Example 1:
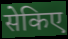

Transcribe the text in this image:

सेकिए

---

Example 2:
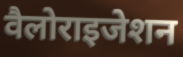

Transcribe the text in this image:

वैलोराइजेशन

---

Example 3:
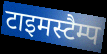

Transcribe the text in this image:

टाइमस्टैम्प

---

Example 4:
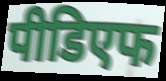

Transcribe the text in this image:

पीडिएफ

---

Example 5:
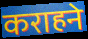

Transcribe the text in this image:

कराहने